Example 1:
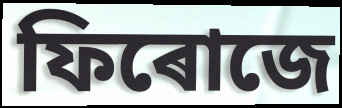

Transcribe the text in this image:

ফিৰোজে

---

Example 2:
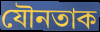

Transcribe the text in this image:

যৌনতাক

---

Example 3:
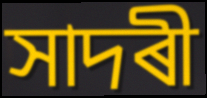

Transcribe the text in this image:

সাদৰী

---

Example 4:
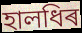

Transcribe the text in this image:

হালধিৰ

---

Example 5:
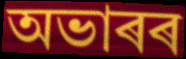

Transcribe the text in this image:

অভাৰৰ